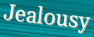
Jealousy